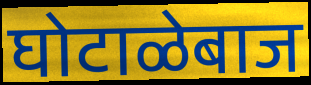
घोटाळेबाज